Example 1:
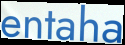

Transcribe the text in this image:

entaha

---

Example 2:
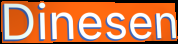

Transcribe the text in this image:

Dinesen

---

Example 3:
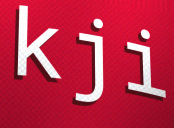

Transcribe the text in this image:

kji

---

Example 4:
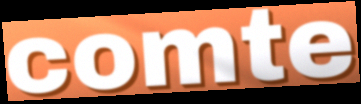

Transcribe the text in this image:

comte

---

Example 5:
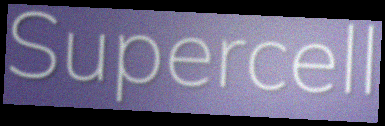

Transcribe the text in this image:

Supercell